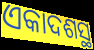
ଏକାଦଶସ୍ଥ